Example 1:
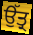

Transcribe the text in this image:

ਉੱਤ੍ਰ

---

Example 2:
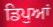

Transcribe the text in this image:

ਡਿਪੁਆਂ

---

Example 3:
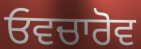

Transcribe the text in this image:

ਓਵਚਾਰੋਵ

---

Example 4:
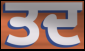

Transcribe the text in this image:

ਤਦ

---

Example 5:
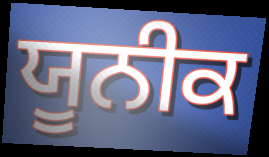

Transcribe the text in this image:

ਯੂਨੀਕ